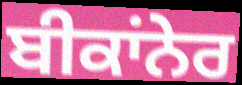
ਬੀਕਾਂਨੇਰ